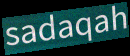
sadaqah